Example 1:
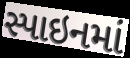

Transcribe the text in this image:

સ્પાઇનમાં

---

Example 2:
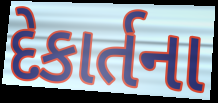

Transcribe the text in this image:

દેકાર્તના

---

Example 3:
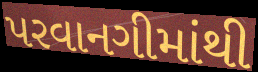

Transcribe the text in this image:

પરવાનગીમાંથી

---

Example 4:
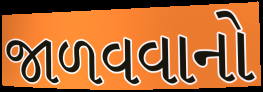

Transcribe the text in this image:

જાળવવાનો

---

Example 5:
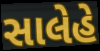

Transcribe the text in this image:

સાલેહે